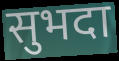
सुभदा